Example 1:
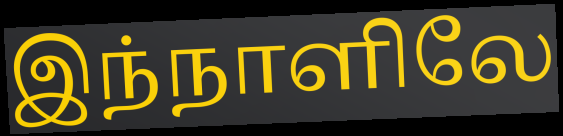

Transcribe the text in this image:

இந்நாளிலே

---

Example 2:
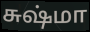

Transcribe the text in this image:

சுஷ்மா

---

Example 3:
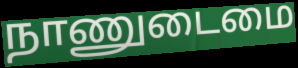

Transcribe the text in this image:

நாணுடைமை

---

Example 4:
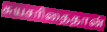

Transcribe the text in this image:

சுயசரிதைதான்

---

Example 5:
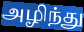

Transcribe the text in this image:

அழிந்து